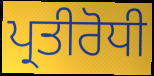
ਪ੍ਰਤੀਰੋਧੀ